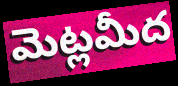
మెట్లమీద